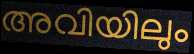
അവിയിലും